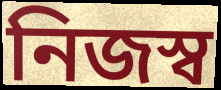
নিজস্ব